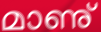
മാണു്